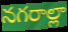
నగరాల్లా